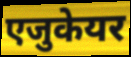
एजुकेयर